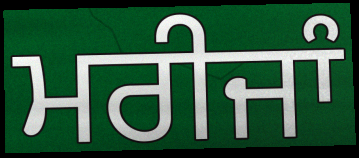
ਮਰੀਜਾੰ